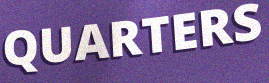
QUARTERS